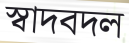
স্বাদবদল